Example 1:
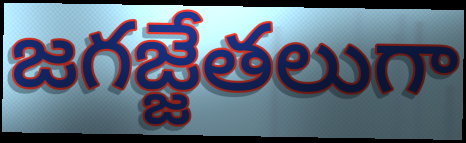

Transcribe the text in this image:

జగజ్జేతలుగా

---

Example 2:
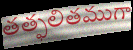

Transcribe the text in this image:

తత్ఫలితముగా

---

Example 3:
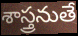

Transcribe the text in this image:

శాస్త్రనుతే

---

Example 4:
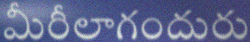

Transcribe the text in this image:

మీరీలాగందురు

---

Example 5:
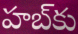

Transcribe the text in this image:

హబ్‌కు